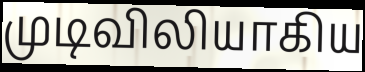
முடிவிலியாகிய